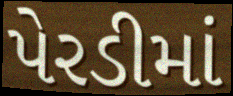
પેરડીમાં